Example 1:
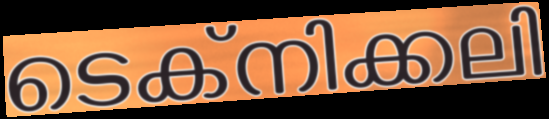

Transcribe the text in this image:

ടെക്‌നിക്കലി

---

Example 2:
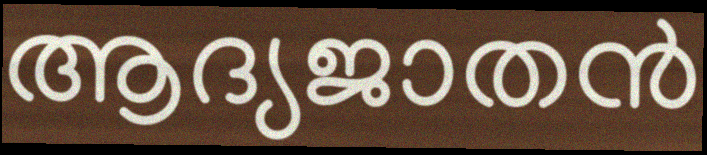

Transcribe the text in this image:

ആദ്യജാതൻ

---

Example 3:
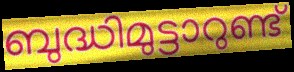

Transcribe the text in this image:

ബുദ്ധിമുട്ടാറുണ്ട്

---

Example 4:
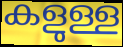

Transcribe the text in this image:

കളുള്ള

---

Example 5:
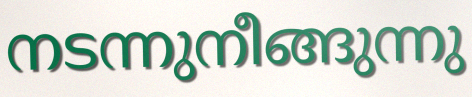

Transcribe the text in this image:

നടന്നുനീങ്ങുന്നു